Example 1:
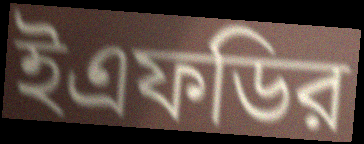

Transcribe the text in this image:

ইএফডির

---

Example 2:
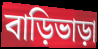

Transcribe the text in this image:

বাড়িভাড়া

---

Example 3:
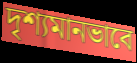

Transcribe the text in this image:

দৃশ্যমানভাবে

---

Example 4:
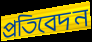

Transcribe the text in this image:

প্রতিবেদন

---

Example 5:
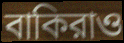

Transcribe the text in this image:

বাকিরাও